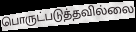
பொருட்படுத்தவில்லை